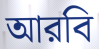
আরবি